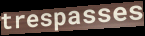
trespasses